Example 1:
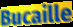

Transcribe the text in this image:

Bucaille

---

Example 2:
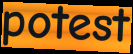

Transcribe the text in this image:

potest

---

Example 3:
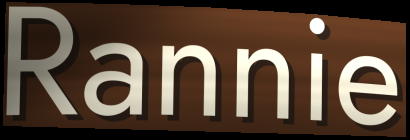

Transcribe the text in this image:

Rannie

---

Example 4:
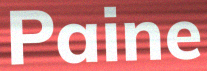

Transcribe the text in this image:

Paine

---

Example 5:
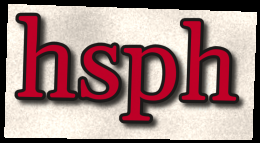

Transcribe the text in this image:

hsph